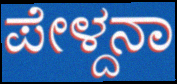
ಪೇಳ್ದನಾ